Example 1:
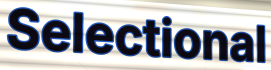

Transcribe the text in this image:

Selectional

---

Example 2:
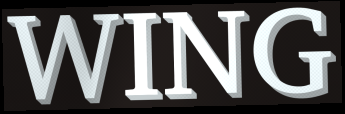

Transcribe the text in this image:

WING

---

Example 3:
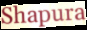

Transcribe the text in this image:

Shapura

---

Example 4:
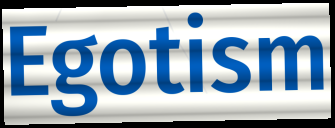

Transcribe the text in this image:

Egotism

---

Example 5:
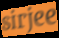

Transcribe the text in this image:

sirjee